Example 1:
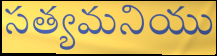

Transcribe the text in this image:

సత్యమనియు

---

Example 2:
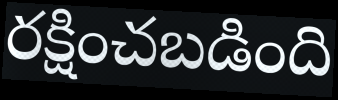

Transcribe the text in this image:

రక్షించబడింది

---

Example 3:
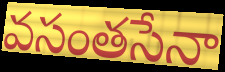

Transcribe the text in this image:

వసంతసేనా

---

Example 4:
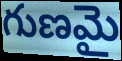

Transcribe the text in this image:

గుణమై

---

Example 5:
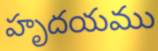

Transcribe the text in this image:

హృదయము